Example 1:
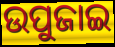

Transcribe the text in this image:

ଉପୁଜାଇ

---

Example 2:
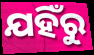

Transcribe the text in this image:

ଯହିଁରୁ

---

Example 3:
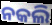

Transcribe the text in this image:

ନକଲି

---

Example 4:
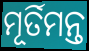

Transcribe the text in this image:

ମୂର୍ତିମନ୍ତ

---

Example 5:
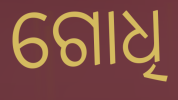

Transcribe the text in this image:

ଗୋଧି